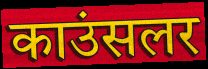
काउंसलर